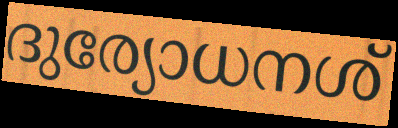
ദുര്യോധനശ്